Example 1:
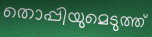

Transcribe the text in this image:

തൊപ്പിയുമെടുത്ത്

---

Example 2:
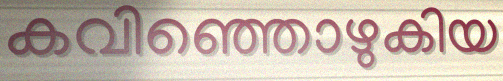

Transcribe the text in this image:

കവിഞ്ഞൊഴുകിയ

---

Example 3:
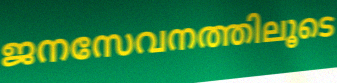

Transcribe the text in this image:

ജനസേവനത്തിലൂടെ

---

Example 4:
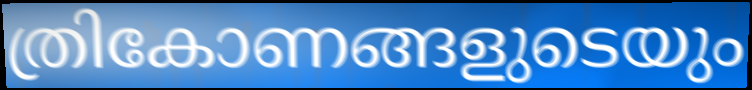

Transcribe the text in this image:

ത്രികോണങ്ങളുടെയും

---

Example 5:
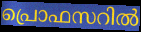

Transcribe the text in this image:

പ്രൊഫസറിൽ